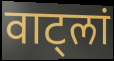
वाट्लां